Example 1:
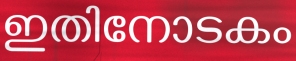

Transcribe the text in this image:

ഇതിനോടകം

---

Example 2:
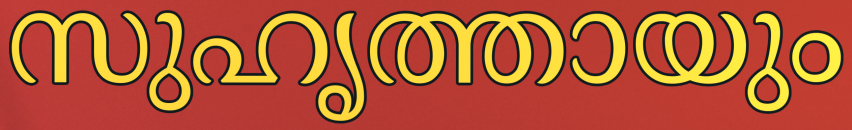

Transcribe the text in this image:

സുഹൃത്തായും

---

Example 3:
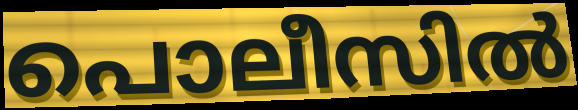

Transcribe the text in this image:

പൊലീസിൽ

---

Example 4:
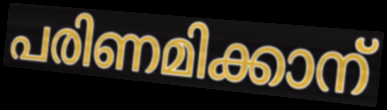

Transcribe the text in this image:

പരിണമിക്കാന്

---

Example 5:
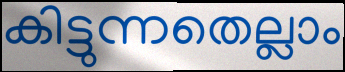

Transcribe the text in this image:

കിട്ടുന്നതെല്ലാം